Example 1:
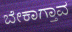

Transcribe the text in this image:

ಬೇಕಾಗ್ತಾವ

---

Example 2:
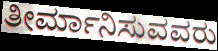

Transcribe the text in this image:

ತೀರ್ಮಾನಿಸುವವರು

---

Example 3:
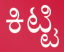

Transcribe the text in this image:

ಕಿಟ್ಟಿ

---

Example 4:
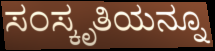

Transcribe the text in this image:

ಸಂಸ್ಕೃತಿಯನ್ನೂ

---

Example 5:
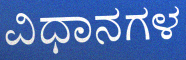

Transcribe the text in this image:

ವಿಧಾನಗಳ